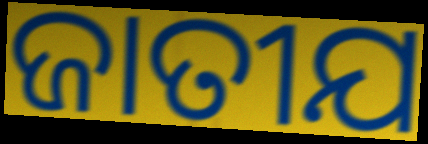
ଜାତୀଯ